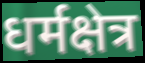
धर्मक्षेत्र